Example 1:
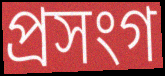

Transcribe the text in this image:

প্রসংগ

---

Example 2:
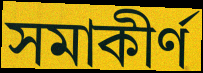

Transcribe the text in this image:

সমাকীর্ণ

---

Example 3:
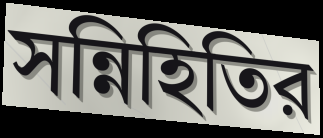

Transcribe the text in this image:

সন্নিহিতির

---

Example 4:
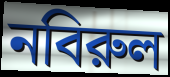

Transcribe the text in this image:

নবিরুল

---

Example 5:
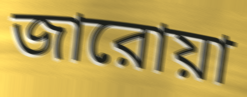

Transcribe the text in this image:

জারোয়া